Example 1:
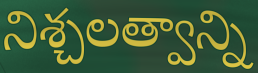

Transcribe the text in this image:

నిశ్చలత్వాన్ని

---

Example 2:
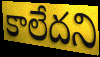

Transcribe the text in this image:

కాలేదని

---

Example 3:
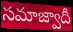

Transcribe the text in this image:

సమాజ్వాదీ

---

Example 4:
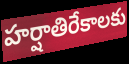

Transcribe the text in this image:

హర్షాతిరేకాలకు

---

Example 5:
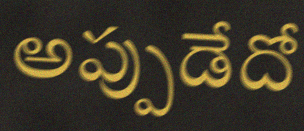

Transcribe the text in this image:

అప్పుడేదో